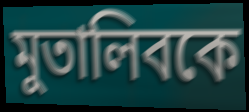
মুতালিবকে